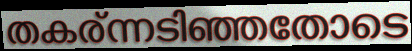
തകര്ന്നടിഞ്ഞതോടെ